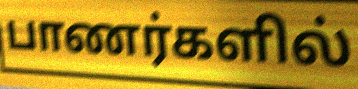
பாணர்களில்